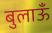
बुलाऊँ